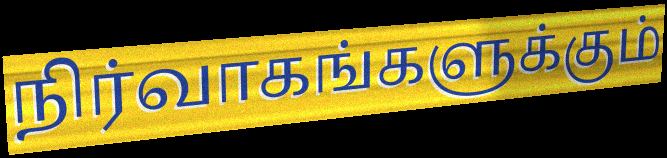
நிர்வாகங்களுக்கும்